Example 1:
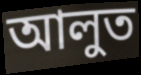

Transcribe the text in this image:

আলুত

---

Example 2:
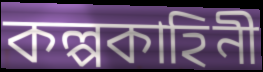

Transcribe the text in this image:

কল্পকাহিনী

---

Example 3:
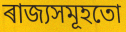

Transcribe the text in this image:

ৰাজ্যসমূহতো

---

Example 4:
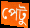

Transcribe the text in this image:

পেটু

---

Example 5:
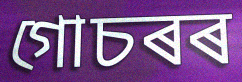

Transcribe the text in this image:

গোচৰৰ